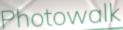
Photowalk